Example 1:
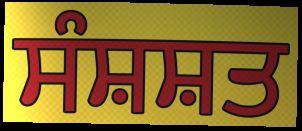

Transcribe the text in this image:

ਸੰਸ਼ਸ਼ਤ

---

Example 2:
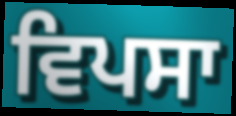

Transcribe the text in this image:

ਵਿਪਸਾ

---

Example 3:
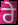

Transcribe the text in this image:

ਰੇ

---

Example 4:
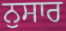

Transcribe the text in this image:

ਨੁਸਾਰ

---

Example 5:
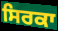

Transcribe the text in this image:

ਸਿਰਕਾ